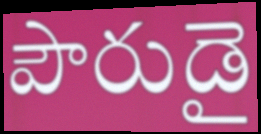
పౌరుడై